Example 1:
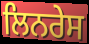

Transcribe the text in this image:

ਲਿਨਰੇਸ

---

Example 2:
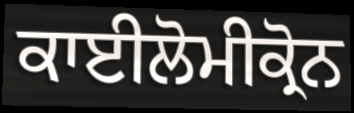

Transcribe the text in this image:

ਕਾਈਲੋਮੀਕ੍ਰੋਨ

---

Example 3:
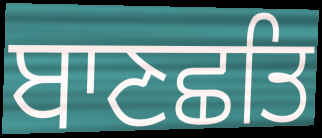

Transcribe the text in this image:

ਬਾਣਛਤਿ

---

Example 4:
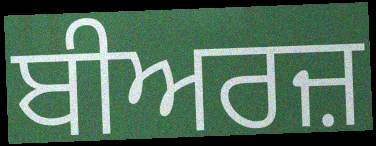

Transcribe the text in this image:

ਬੀਅਰਜ਼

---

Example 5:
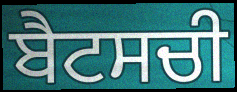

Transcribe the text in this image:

ਬੈਟਸਚੀ